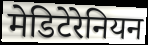
मेडिटेरेनियन